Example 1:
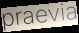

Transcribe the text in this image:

praevia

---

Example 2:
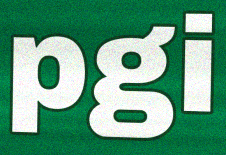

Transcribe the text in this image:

pgi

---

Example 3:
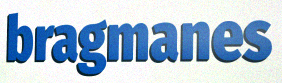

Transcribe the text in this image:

bragmanes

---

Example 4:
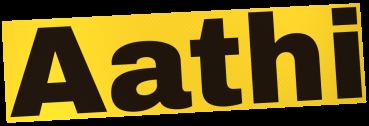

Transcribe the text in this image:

Aathi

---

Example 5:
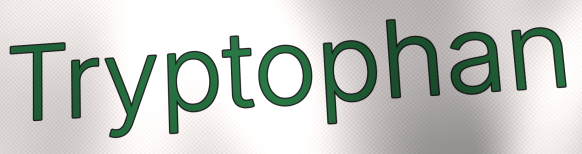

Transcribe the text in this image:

Tryptophan